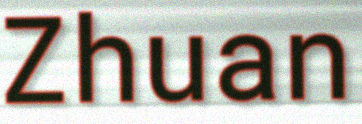
Zhuan